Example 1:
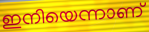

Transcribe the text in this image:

ഇനിയെന്നാണ്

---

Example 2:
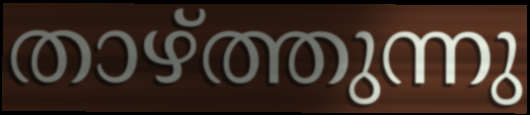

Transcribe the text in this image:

താഴ്ത്തുന്നു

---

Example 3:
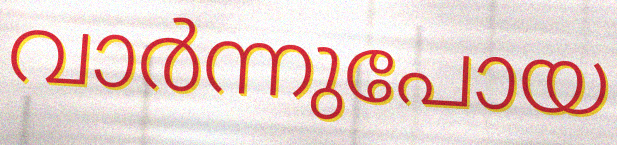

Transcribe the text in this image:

വാർന്നുപോയ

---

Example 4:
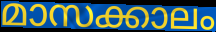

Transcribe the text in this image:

മാസക്കാലം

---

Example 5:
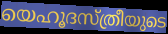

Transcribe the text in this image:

യെഹൂദസ്ത്രീയുടെ